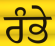
ਰੰਭੇ